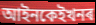
আইনকেইখনৰ